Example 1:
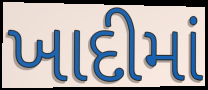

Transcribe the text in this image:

ખાદીમાં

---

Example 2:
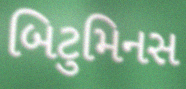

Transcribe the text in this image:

બિટુમિનસ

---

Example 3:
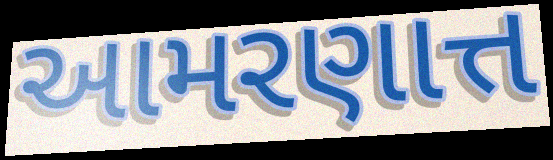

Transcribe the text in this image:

આમરણાત્ત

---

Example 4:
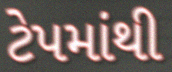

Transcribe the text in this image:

ટેપમાંથી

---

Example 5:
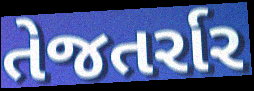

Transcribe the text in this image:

તેજતર્રાર